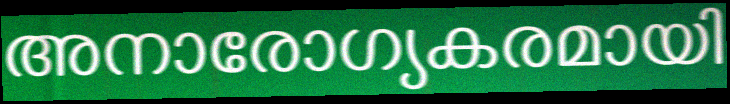
അനാരോഗ്യകരമായി